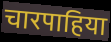
चारपाहिया